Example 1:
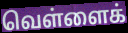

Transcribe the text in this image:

வெள்ளைக்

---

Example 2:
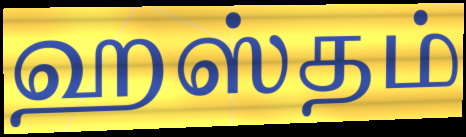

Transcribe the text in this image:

ஹஸ்தம்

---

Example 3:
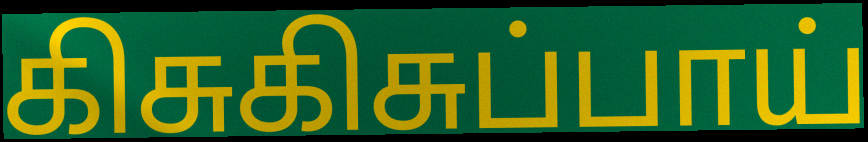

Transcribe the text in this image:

கிசுகிசுப்பாய்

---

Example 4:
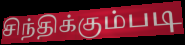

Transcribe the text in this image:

சிந்திக்கும்படி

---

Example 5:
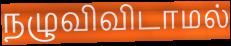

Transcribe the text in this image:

நழுவிவிடாமல்